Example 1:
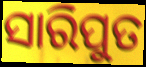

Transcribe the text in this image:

ସାରିପୁତ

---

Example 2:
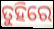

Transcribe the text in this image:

ତୁହିରେ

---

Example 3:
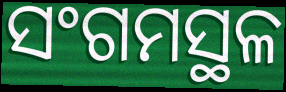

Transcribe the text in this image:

ସଂଗମସ୍ଥଳ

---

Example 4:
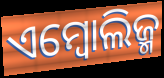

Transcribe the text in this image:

ଏମ୍ବୋଲିଜ୍ମ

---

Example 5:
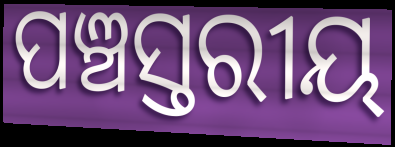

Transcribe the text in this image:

ପଞ୍ଚସ୍ତରୀୟ